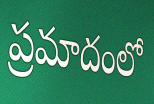
ప్రమాదంలో